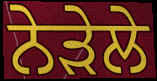
ਨੇੜੇਲੇ